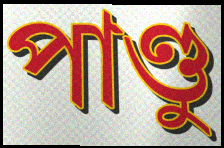
পাণ্ডু